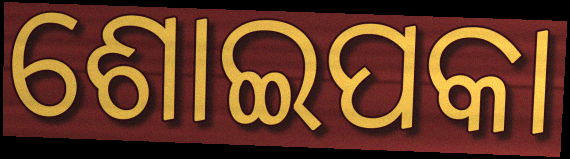
ଶୋଇପକା